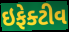
ઇફેક્ટીવ